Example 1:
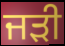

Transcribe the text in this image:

ਜੜੀ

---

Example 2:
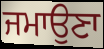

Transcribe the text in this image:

ਜਮਾਉਣਾ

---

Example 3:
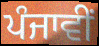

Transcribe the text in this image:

ਪੰਜਾਵੀਂ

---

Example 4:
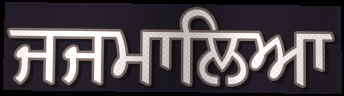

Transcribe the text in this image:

ਜਜਮਾਲਿਆ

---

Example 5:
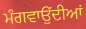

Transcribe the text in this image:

ਮੰਗਵਾਉਂਦੀਆਂ